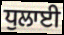
ਧੁਲਾਈ